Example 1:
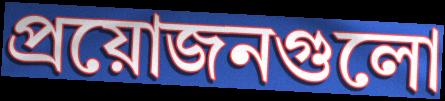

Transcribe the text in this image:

প্রয়োজনগুলো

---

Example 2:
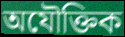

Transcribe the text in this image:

অযৌক্তিক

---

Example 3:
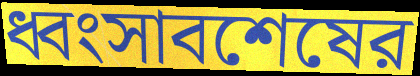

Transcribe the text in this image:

ধ্বংসাবশেষের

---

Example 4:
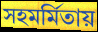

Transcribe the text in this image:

সহমর্মিতায়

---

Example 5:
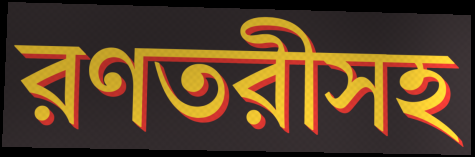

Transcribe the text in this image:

রণতরীসহ